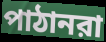
পাঠানরা